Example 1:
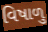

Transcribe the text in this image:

વિષાળુ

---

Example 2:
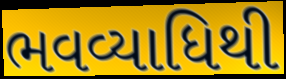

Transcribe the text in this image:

ભવવ્યાધિથી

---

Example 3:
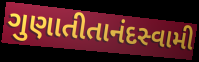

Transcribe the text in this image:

ગુણાતીતાનંદસ્વામી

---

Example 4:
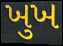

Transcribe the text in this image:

ખુખ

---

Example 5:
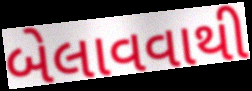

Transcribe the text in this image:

બેલાવવાથી